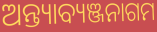
ଅନ୍ତ୍ୟାବ୍ୟଞ୍ଜନାଗମ